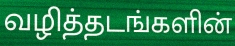
வழித்தடங்களின்